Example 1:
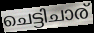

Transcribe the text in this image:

ചെട്ടിചാര്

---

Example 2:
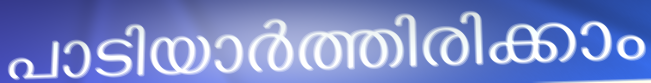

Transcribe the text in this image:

പാടിയാർത്തിരിക്കാം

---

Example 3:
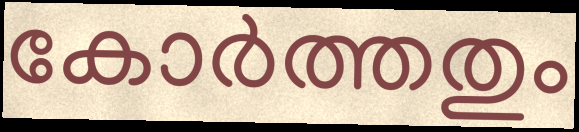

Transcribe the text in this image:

കോർത്തതും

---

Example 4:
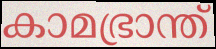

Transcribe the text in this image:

കാമഭ്രാന്ത്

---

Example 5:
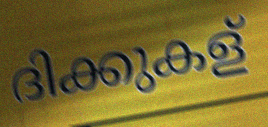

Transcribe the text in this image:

ദിക്കുകള്